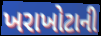
ખરાખોટાની